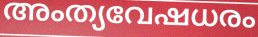
അംത്യവേഷധരം